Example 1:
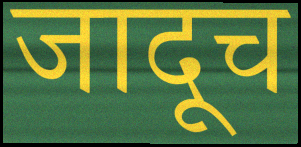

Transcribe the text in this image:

जादूच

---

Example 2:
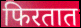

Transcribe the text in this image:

फिरतात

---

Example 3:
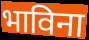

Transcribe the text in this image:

भाविना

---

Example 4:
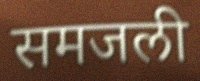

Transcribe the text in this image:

समजली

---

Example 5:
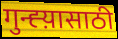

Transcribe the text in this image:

गुन्ह्य़ासाठी